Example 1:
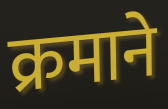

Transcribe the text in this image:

क्रमाने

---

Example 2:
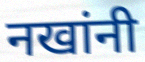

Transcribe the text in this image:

नखांनी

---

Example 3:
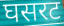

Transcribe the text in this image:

घसरट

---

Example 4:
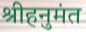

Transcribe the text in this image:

श्रीहनुमंत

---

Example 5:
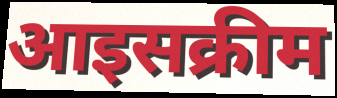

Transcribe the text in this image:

आइसक्रीम